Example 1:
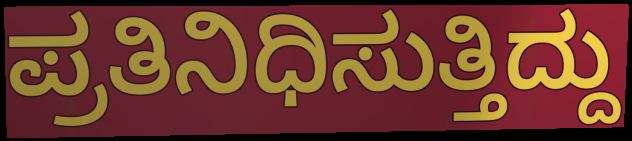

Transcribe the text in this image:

ಪ್ರತಿನಿಧಿಸುತ್ತಿದ್ದು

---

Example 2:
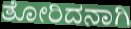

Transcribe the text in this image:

ತೋರಿದನಾಗಿ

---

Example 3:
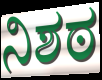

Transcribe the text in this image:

ನಿಶಠ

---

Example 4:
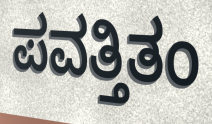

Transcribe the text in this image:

ಪವತ್ತಿತಂ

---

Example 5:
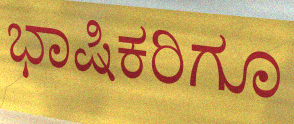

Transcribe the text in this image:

ಭಾಷಿಕರಿಗೂ